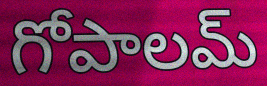
గోపాలమ్